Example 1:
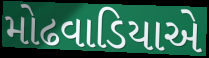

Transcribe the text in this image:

મોઢવાડિયાએ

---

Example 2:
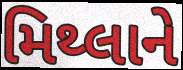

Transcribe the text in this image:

મિથ્લાને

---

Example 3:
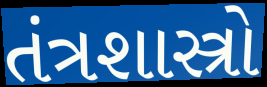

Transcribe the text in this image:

તંત્રશાસ્ત્રો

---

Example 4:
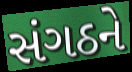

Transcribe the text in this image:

સંગઠને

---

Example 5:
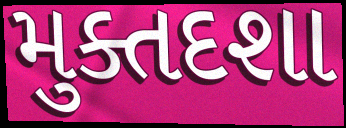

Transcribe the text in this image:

મુક્તદશા